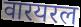
वारयरल